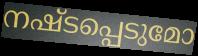
നഷ്ടപ്പെടുമോ